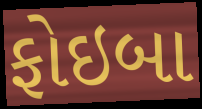
ફોઇબા